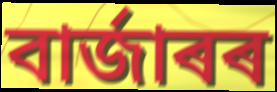
বাৰ্জাৰৰ